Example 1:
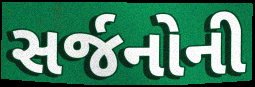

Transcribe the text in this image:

સર્જનોની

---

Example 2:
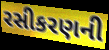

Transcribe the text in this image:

રસીકરણની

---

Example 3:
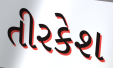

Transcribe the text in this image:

તીરકેશ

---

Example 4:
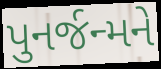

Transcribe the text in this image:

પુનર્જન્મને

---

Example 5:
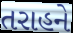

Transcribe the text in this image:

તરાહને